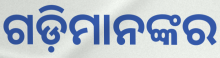
ଗଡ଼ିମାନଙ୍କର